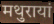
मथुरायां